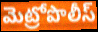
మెట్రోపొలీస్